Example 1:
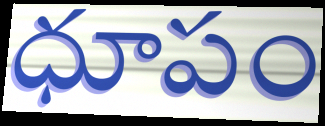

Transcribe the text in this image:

ధూపం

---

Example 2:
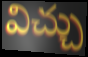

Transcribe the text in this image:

విచ్చు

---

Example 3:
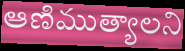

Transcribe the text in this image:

ఆణిముత్యాలని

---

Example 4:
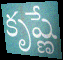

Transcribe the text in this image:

కృష్ణే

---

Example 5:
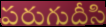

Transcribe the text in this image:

పరుగుదీసి